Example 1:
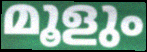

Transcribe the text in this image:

മൂളും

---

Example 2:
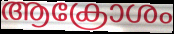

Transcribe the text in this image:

ആക്രോശം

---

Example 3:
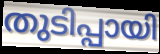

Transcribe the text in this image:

തുടിപ്പായി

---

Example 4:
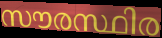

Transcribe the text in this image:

സൗരസ്ഥിര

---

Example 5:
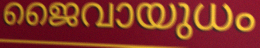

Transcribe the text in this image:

ജൈവായുധം